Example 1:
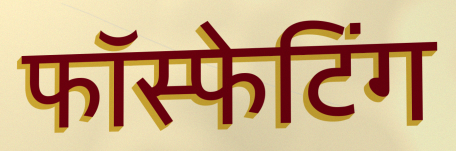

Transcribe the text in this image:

फॉस्फेटिंग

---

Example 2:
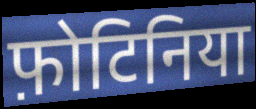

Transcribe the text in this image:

फ़ोटिनिया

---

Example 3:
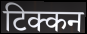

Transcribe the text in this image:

टिक्कन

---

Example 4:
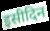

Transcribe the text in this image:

इसीदिन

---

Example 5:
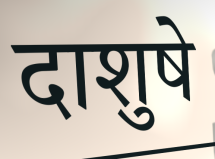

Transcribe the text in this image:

दाशुषे